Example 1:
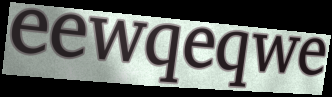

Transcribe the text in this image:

eewqeqwe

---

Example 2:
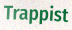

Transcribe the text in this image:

Trappist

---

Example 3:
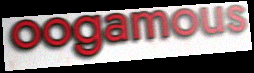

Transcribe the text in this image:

oogamous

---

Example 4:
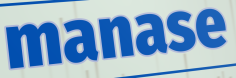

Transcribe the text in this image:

manase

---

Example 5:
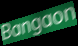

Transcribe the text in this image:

Bangaon